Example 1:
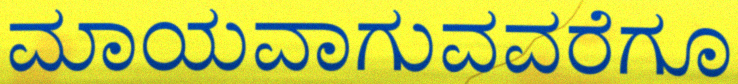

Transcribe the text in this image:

ಮಾಯವಾಗುವವರೆಗೂ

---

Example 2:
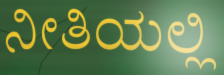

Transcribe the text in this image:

ನೀತಿಯಲ್ಲಿ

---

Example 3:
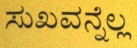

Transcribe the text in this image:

ಸುಖವನ್ನೆಲ್ಲ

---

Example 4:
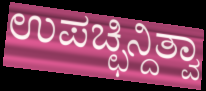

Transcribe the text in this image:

ಉಪಚ್ಛಿನ್ದಿತ್ವಾ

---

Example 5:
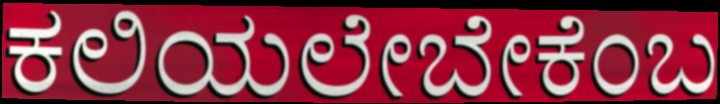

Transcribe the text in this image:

ಕಲಿಯಲೇಬೇಕೆಂಬ